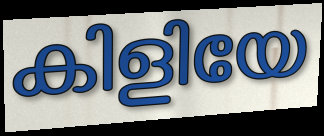
കിളിയേ